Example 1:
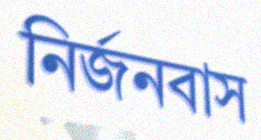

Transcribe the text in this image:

নির্জনবাস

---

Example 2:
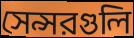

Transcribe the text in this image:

সেন্সরগুলি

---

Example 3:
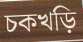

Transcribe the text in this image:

চকখড়ি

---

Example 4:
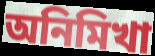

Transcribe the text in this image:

অনিমিখা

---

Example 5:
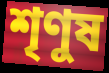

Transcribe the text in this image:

শৃণুষ